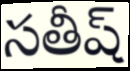
సతీష్